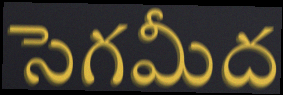
సెగమీద